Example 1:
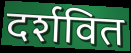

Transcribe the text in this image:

दर्शवित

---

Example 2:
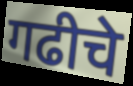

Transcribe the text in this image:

गढीचे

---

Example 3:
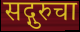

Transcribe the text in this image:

सद्गुरुचा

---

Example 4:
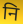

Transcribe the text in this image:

नि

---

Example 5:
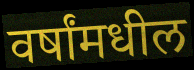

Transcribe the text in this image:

वर्षांमधील